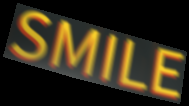
SMILE